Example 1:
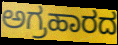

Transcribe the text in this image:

ಅಗ್ರಹಾರದ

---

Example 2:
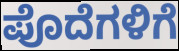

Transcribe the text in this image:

ಪೊದೆಗಳಿಗೆ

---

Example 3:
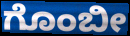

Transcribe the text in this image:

ಗೊಂಬೀ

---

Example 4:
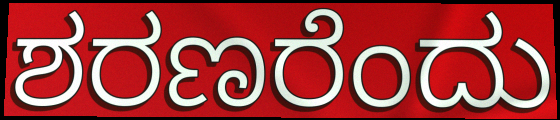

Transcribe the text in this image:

ಶರಣರೆಂದು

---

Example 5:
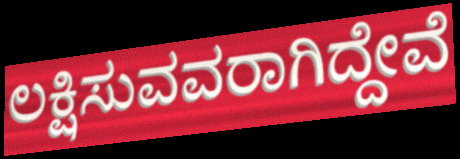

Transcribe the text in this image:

ಲಕ್ಷಿಸುವವರಾಗಿದ್ದೇವೆ